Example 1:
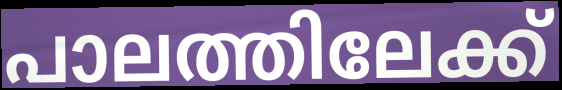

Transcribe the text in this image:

പാലത്തിലേക്ക്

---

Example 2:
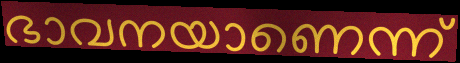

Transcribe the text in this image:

ഭാവനയാണെന്ന്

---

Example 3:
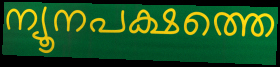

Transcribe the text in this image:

ന്യൂനപക്ഷത്തെ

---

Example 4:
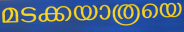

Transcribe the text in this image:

മടക്കയാത്രയെ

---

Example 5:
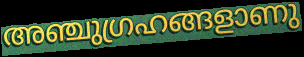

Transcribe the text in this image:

അഞ്ചുഗ്രഹങ്ങളാണു